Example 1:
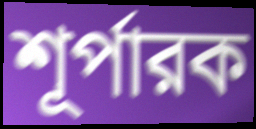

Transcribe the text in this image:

শূর্পারক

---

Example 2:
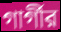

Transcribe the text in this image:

গার্গীর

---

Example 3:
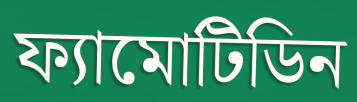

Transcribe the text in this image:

ফ্যামোটিডিন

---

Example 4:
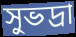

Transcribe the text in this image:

সুভদ্রা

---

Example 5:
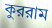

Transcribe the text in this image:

কুররাম